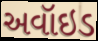
અવૉઇડ